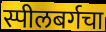
स्पीलबर्गचा